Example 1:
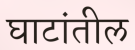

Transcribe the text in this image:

घाटांतील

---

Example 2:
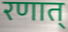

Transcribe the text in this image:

रणात्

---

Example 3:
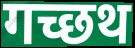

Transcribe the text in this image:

गच्छथ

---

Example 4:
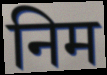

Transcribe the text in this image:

निम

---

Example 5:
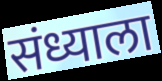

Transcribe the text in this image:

संध्याला